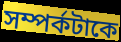
সম্পর্কটাকে